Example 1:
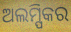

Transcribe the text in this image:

ଅଲମ୍ପିକର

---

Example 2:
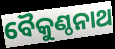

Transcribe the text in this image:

ବୈକୁଣ୍ଠନାଥ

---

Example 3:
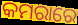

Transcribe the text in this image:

କମରାରେ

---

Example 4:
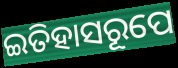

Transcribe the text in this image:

ଇତିହାସରୂପେ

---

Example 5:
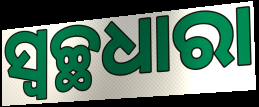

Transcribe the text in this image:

ସ୍ୱଚ୍ଛଧାରା